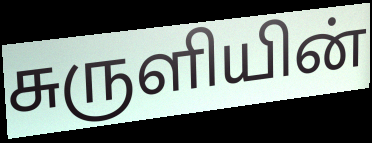
சுருளியின்